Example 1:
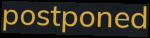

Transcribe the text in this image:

postponed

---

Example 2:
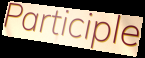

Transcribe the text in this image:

Participle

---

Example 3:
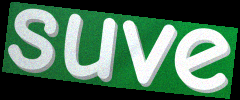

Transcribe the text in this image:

suve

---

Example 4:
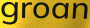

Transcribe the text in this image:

groan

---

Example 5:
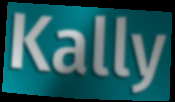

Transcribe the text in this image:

Kally